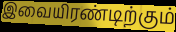
இவையிரண்டிற்கும்